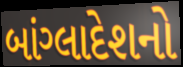
બાંગ્લાદેશનો